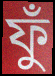
ফুঁ